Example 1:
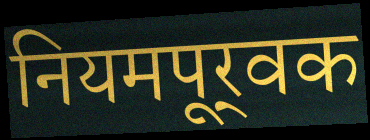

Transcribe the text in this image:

नियमपूर्वक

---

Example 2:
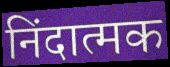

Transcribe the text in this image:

निंदात्मक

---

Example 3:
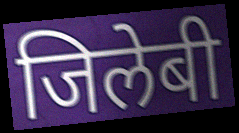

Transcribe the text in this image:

जिलेबी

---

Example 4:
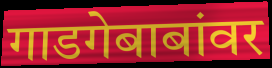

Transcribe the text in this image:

गाडगेबाबांवर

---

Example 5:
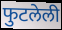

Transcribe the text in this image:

फुटलेली